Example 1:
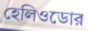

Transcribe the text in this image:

হেলিওডোর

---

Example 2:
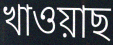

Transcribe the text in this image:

খাওয়াছ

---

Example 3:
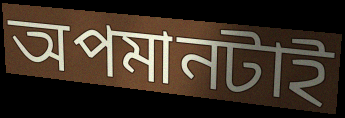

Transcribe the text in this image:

অপমানটাই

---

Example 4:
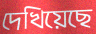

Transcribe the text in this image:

দেখিয়েছে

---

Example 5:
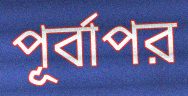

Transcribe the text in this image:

পূর্বাপর